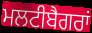
ਮਲਟੀਬੈਗਰਾਂ